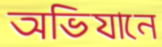
অভিযানে